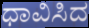
ಧಾವಿಸಿದ